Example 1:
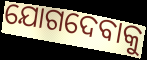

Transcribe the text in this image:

ଯୋଗଦେବାକୁ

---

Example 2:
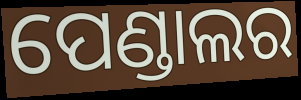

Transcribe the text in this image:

ପେଣ୍ଡାଲର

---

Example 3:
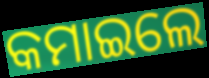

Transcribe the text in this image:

କମାଇଲେ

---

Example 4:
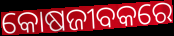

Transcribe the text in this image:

କୋଷଜୀବକରେ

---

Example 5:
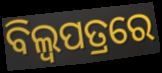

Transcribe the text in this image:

ବିଲ୍ଵପତ୍ରରେ